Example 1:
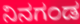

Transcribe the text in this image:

ನಿನಗಂಡ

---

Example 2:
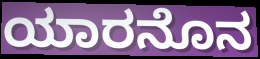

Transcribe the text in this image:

ಯಾರನೊನ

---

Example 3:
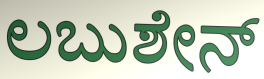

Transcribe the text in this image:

ಲಬುಶೇನ್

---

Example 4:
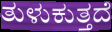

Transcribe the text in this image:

ತುಳುಕುತ್ತದೆ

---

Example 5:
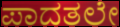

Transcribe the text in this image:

ಪಾದತಲೇ